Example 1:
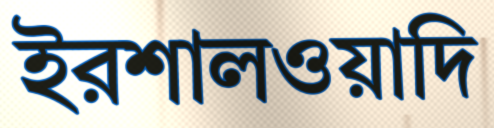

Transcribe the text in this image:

ইরশালওয়াদি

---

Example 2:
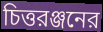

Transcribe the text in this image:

চিত্তরঞ্জনের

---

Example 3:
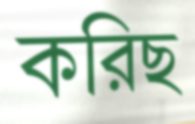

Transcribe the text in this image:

করিছ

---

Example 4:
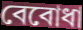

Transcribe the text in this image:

বেবোধা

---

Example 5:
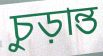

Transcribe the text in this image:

চুড়ান্ত